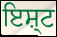
ਇਸ਼੍ਟ